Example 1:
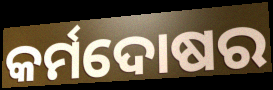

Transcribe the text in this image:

କର୍ମଦୋଷର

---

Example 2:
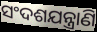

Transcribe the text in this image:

ସଂଦଶଯନ୍ତ୍ରାଣି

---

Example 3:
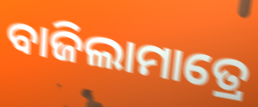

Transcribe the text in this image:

ବାଜିଲାମାତ୍ରେ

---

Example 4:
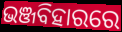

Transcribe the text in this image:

ଭଞ୍ଜବିହାରରେ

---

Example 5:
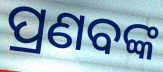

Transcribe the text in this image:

ପ୍ରଣବଙ୍କ